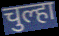
चुल्हा